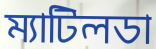
ম্যাটিলডা